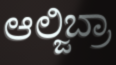
ಆಲ್ಜಿಬ್ರಾ